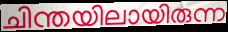
ചിന്തയിലായിരുന്ന